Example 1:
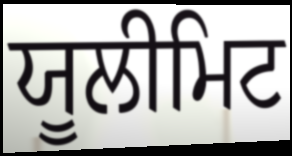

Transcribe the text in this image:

ਯੂਲੀਮਿਟ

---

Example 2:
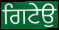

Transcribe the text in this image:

ਗਿਟੇਉ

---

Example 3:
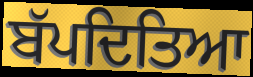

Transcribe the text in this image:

ਬੱਪਦਿਤਿਆ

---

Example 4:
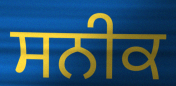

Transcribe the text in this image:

ਸਨੀਕ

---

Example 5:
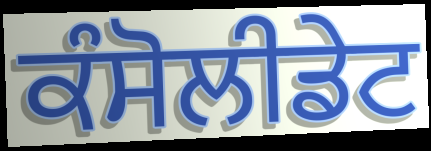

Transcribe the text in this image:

ਕੰਸੋਲੀਡੇਟ